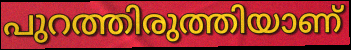
പുറത്തിരുത്തിയാണ്